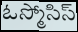
ఓస్మోసిస్